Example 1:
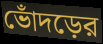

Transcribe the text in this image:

ভোঁদড়ের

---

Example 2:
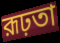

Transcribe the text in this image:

রূঢ়তা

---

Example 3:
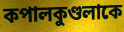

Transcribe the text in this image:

কপালকুণ্ডলাকে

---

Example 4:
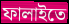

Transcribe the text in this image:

ফালাইতে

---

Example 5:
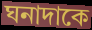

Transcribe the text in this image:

ঘনাদাকে